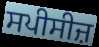
ਸਪੀਸੀਜ਼